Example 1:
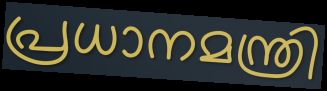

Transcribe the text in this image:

പ്രധാനമന്ത്രി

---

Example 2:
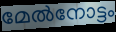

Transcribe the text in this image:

മേൽനോട്ടം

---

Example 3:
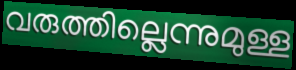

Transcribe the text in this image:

വരുത്തില്ലെന്നുമുള്ള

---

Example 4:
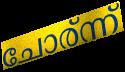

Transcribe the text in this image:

ചോര്ന്ന്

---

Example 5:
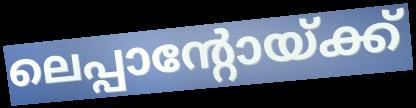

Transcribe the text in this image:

ലെപ്പാന്റോയ്ക്ക്